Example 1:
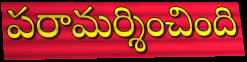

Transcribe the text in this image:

పరామర్శించింది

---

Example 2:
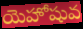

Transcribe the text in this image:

యెహోషువ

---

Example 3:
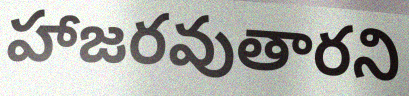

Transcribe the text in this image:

హాజరవుతారని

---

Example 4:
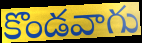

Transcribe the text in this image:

కొండవాగు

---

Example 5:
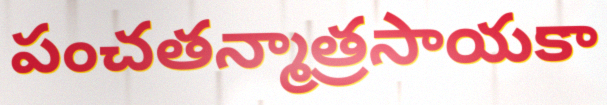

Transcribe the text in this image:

పంచతన్మాత్రసాయకా